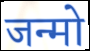
जन्मो